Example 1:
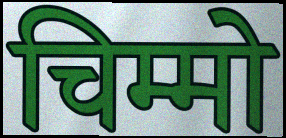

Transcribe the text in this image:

चिम्मो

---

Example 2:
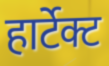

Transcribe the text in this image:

हार्टेक्ट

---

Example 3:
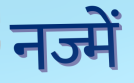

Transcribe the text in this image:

नज्में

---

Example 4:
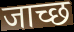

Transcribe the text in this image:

जाच्छ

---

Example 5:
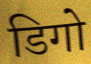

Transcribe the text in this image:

डिगो